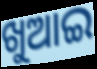
ଖୁଆଇ